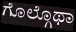
ಗೊಲ್ಗೊಥಾ